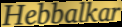
Hebbalkar